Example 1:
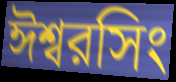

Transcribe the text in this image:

ঈশ্বরসিং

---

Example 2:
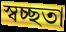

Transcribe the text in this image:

স্বচ্ছতা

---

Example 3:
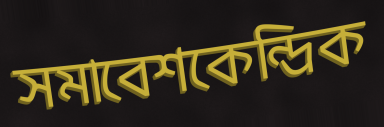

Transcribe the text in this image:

সমাবেশকেন্দ্রিক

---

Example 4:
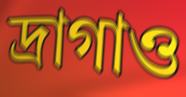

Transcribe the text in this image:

দ্রাগাও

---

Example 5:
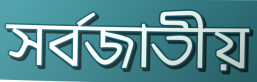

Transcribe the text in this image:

সর্বজাতীয়